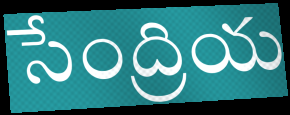
సేంద్రియ